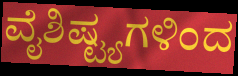
ವೈಶಿಷ್ಟ್ಯಗಳಿಂದ